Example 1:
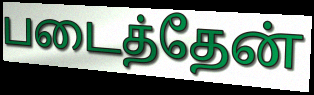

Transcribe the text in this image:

படைத்தேன்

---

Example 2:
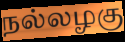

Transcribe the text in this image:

நல்லழகு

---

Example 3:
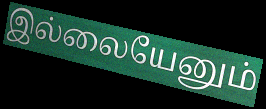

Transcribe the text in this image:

இல்லையேனும்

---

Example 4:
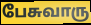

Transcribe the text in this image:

பேசுவாரு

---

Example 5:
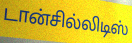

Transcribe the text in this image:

டான்சில்லிடிஸ்